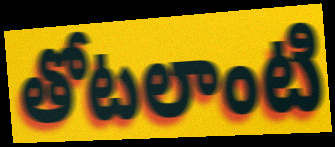
తోటలాంటి